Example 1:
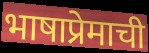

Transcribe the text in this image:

भाषाप्रेमाची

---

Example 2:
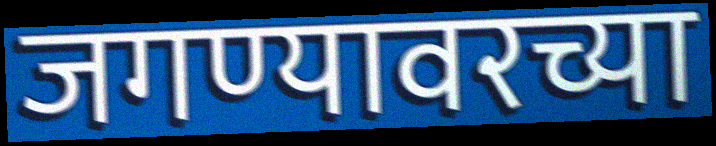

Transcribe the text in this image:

जगण्यावरच्या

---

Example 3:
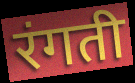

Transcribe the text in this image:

रंगती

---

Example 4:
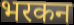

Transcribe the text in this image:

भरकन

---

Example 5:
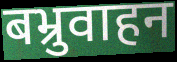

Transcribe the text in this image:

बभ्रुवाहन